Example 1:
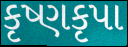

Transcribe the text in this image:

કૃષ્ણકૃપા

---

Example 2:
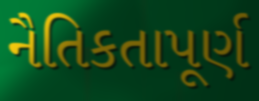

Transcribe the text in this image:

નૈતિકતાપૂર્ણ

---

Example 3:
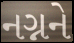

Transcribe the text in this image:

નગ્નને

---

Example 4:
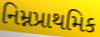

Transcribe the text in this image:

નિમ્નપ્રાથમિક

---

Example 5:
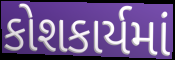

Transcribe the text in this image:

કોશકાર્યમાં